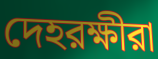
দেহরক্ষীরা